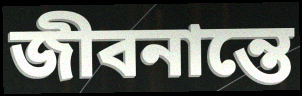
জীবনান্তে